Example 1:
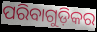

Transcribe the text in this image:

ପରିବାଗୁଡ଼ିକର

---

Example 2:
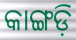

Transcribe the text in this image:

କାଙ୍ଗଡ଼ି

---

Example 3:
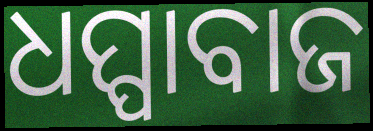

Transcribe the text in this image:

ଧପ୍ପାବାଜ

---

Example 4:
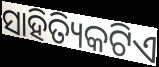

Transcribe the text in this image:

ସାହିତ୍ୟିକଟିଏ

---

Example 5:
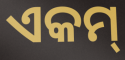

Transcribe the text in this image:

ଏକମ୍